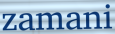
zamani